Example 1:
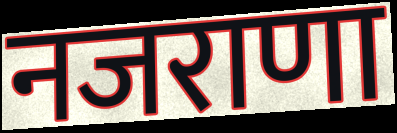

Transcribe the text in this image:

नजराणा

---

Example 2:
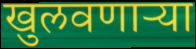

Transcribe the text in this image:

खुलवणाऱ्या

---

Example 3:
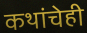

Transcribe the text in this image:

कथांचेही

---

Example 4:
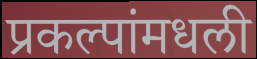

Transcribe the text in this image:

प्रकल्पांमधली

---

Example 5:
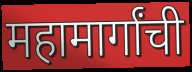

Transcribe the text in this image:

महामार्गांची